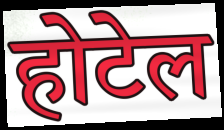
होटेल